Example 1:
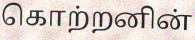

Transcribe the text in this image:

கொற்றனின்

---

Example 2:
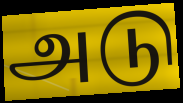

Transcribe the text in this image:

அடு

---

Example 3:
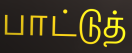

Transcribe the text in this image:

பாட்டுத்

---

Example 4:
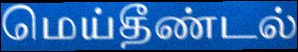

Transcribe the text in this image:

மெய்தீண்டல்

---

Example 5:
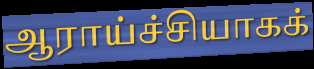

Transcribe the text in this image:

ஆராய்ச்சியாகக்